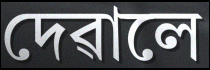
দেৱালে